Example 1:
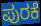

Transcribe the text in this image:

ಪುರಕೆ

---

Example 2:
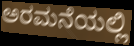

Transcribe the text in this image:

ಅರಮನೆಯಲ್ಲಿ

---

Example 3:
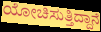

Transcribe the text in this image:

ಯೋಚಿಸುತ್ತಿದ್ದಾನೆ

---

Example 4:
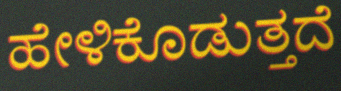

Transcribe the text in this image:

ಹೇಳಿಕೊಡುತ್ತದೆ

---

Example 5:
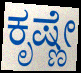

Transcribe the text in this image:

ಕೃಷ್ಣೇ